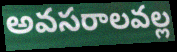
అవసరాలవల్ల